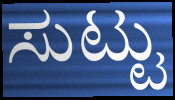
ಸುಟ್ಟು